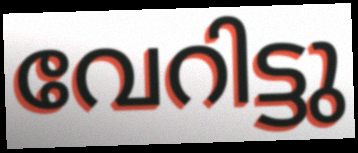
വേറിട്ടു